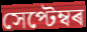
সেপ্টেম্বৰ